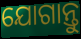
ଯୋଗାନ୍ତୁ